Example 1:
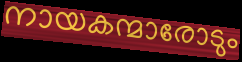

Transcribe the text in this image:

നായകന്മാരോടും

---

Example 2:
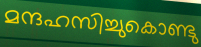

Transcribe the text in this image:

മന്ദഹസിച്ചുകൊണ്ടു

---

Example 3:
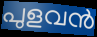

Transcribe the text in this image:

പുളവൻ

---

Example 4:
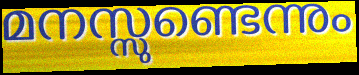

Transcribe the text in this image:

മനസ്സുണ്ടെന്നും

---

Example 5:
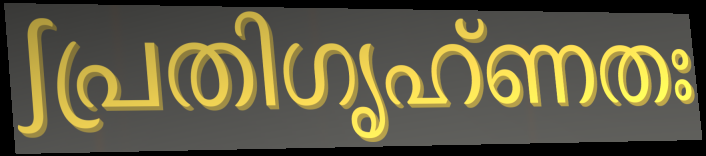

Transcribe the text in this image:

ഽപ്രതിഗൃഹ്ണതഃ